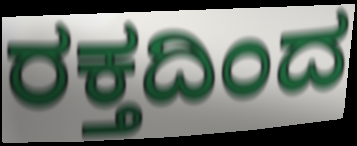
ರಕ್ತದಿಂದ